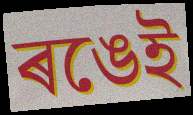
ৰঙেই